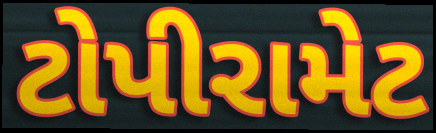
ટોપીરામેટ